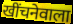
खींचनेवाला